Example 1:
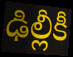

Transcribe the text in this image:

ఢిల్లీకీ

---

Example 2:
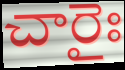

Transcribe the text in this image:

చారైః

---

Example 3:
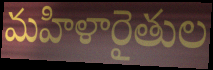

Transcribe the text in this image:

మహిళారైతుల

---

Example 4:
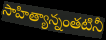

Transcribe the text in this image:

సాహిత్యాన్నంతటినీ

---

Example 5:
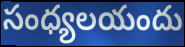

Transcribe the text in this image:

సంధ్యలయందు